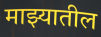
माझ्यातील